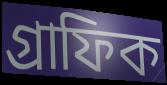
গ্ৰাফিক